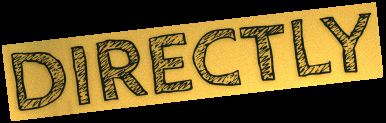
DIRECTLY